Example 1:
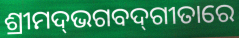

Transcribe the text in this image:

ଶ୍ରୀମଦ୍‌ଭଗବଦ୍‌ଗୀତାରେ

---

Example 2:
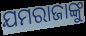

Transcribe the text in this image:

ଯମରାଜାଙ୍କୁ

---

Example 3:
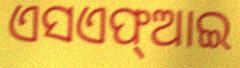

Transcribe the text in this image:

ଏସଏଫ୍ଆଇ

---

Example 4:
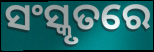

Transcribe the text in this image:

ସଂସ୍କୃତରେ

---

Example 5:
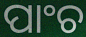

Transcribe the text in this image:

ପାଂଚ